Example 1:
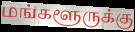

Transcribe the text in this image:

மங்களூருக்கு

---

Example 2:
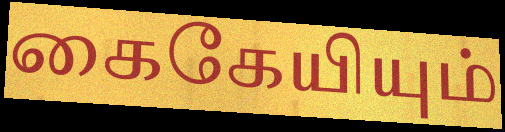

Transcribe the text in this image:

கைகேயியும்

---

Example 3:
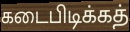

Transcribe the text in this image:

கடைபிடிக்கத்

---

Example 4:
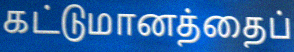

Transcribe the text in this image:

கட்டுமானத்தைப்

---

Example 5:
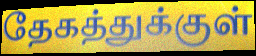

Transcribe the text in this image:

தேகத்துக்குள்